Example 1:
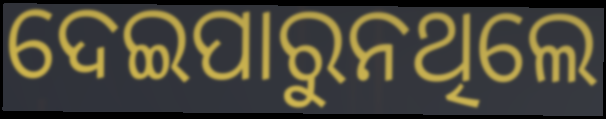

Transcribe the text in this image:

ଦେଇପାରୁନଥିଲେ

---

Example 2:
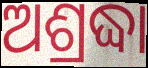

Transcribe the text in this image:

ଅଶ୍ରଦ୍ଧା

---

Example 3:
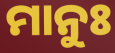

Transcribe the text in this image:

ମାନୁଃ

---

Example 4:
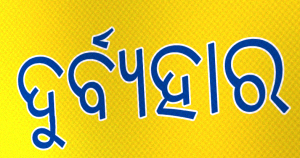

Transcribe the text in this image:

ଦୁର୍ବ୍ୟହାର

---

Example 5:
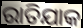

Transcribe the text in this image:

ରାତିଯାକ